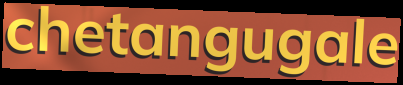
chetangugale